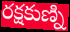
రక్షకుణ్ని